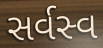
સર્વસ્વ